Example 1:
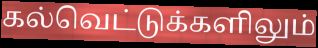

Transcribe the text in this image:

கல்வெட்டுக்களிலும்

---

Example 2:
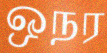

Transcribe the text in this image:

ஒநர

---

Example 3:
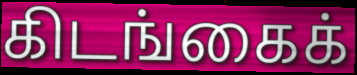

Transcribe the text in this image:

கிடங்கைக்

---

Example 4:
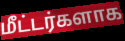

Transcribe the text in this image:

மீட்டர்களாக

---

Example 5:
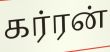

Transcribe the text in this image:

கர்ரன்